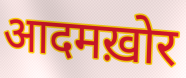
आदमख़ोर